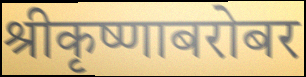
श्रीकृष्णाबरोबर